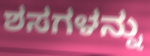
ಶಸಗಳನ್ನು